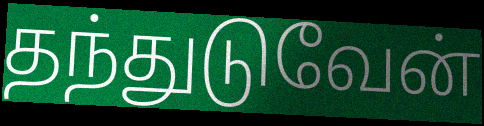
தந்துடுவேன்